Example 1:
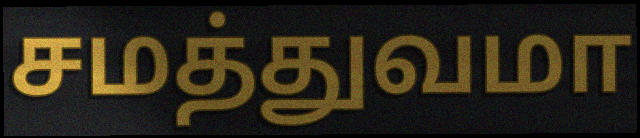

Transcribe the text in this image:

சமத்துவமா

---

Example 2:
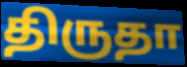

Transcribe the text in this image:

திருதா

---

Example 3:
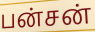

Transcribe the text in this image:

பன்சன்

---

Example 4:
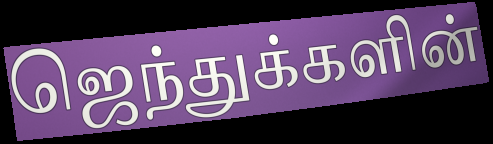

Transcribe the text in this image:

ஜெந்துக்களின்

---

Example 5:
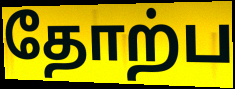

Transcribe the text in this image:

தோற்ப